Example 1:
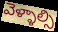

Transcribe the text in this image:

వెళ్ళాల్సి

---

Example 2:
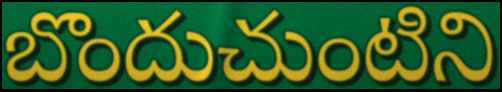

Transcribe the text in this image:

బొందుచుంటిని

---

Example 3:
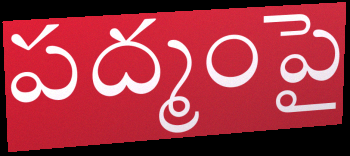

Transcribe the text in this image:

పద్మంపై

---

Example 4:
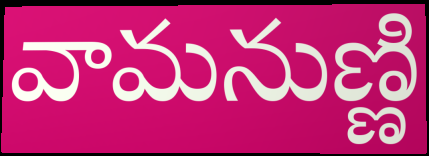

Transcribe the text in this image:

వామనుణ్ణి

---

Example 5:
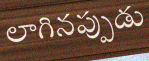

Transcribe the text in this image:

లాగినప్పుడు